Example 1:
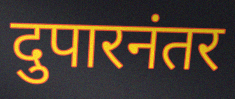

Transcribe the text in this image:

दुपारनंतर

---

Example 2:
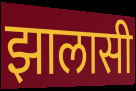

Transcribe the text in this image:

झालासी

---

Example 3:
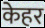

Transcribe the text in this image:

केहर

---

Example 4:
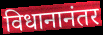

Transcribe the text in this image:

विधानानंतर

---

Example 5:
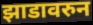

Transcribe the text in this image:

झाडावरुन